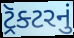
ટ્રૅક્ટરનું